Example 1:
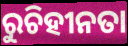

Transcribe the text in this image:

ରୁଚିହୀନତା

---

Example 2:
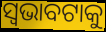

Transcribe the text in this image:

ସ୍ଵଭାବଟାକୁ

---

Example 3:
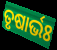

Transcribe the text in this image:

ତୃଷାର୍ଭଃ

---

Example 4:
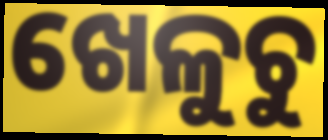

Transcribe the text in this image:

ଖେଳୁଚୁ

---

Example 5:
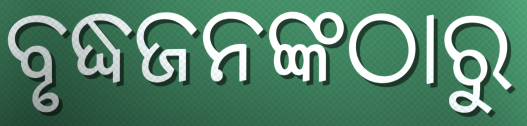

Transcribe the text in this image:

ବୃଦ୍ଧଜନଙ୍କଠାରୁ